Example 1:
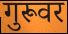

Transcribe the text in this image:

गुरूवर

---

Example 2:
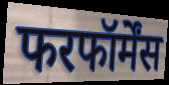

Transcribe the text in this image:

फरफॉर्मेंस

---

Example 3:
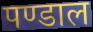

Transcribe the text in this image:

पण्डाल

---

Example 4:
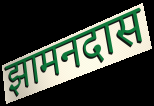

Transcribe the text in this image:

झामनदास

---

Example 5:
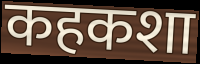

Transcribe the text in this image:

कहकशा